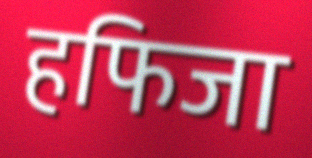
हफिजा